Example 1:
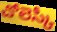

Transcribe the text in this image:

చోలెస్కీ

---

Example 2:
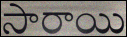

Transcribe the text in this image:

సారాయి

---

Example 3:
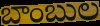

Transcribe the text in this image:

బాంబుల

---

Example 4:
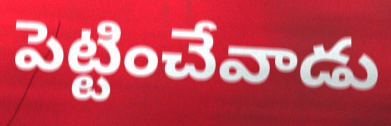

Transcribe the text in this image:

పెట్టించేవాడు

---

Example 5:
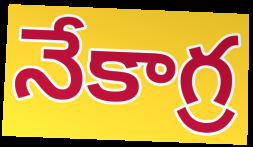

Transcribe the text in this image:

నేకాగ్ర